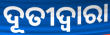
ଦୂତୀଦ୍ୱାରା